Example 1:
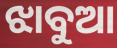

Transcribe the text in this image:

ଝାବୁଆ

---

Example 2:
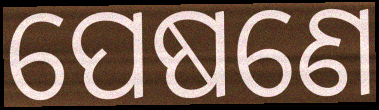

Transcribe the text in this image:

ପେଷଣେ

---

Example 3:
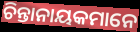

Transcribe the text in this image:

ଚିନ୍ତାନାୟକମାନେ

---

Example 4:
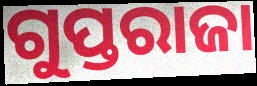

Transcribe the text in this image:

ଗୁପ୍ତରାଜା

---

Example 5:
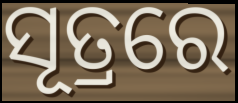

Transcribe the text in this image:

ସୂତ୍ରରେ